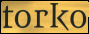
torko